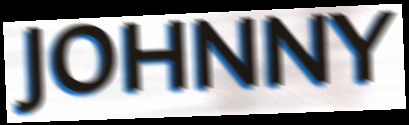
JOHNNY